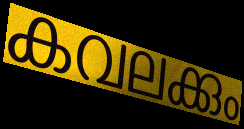
കവലക്കും